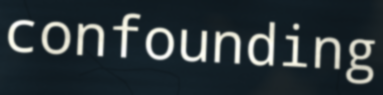
confounding